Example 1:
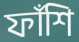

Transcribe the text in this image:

ফাঁশি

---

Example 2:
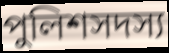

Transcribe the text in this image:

পুলিশসদস্য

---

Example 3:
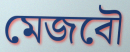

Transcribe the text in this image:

মেজবৌ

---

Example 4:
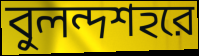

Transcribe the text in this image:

বুলন্দশহরে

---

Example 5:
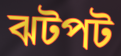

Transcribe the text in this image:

ঝটপট